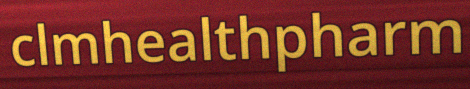
clmhealthpharm